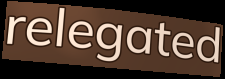
relegated